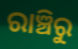
ରାଞ୍ଚିରୁ